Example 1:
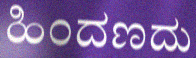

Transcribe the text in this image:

ಹಿಂದಣದು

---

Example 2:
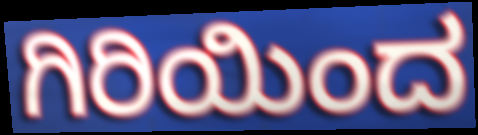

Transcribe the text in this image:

ಗಿರಿಯಿಂದ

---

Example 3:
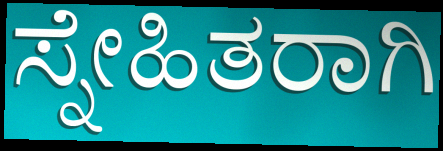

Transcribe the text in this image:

ಸ್ನೇಹಿತರಾಗಿ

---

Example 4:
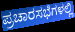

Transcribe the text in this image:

ಪ್ರಚಾರಸಭೆಗಳಲ್ಲಿ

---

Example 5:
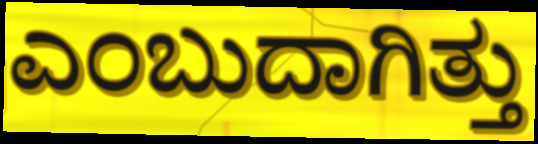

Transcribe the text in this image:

ಎಂಬುದಾಗಿತ್ತು